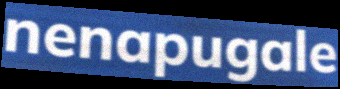
nenapugale